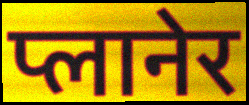
प्लानेर